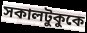
সকালটুকুকে